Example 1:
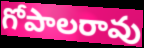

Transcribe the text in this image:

గోపాలరావు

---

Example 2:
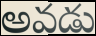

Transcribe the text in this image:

అవడు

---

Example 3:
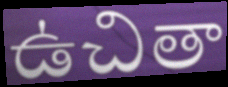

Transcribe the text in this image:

ఉచితా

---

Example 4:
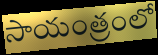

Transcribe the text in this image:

సాయంత్రంలో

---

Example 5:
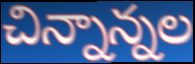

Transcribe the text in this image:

చిన్నాన్నల